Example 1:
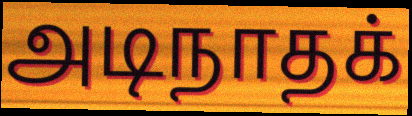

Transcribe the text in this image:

அடிநாதக்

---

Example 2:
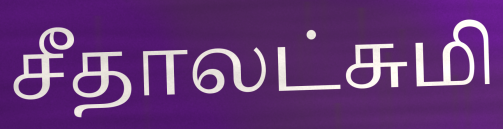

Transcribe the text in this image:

சீதாலட்சுமி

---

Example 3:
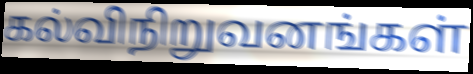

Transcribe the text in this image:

கல்விநிறுவனங்கள்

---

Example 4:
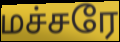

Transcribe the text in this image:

மச்சரே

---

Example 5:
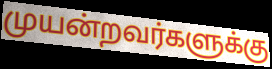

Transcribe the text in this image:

முயன்றவர்களுக்கு